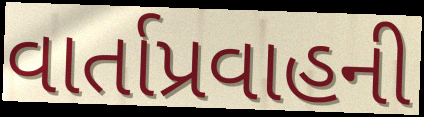
વાર્તાપ્રવાહની